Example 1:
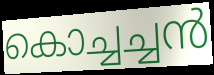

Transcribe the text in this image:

കൊച്ചച്ചൻ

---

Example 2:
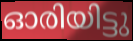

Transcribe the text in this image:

ഓരിയിട്ടു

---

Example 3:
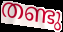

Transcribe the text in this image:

തണ്ടു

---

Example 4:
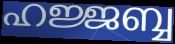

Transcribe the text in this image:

ഹജ്ജബ്ബ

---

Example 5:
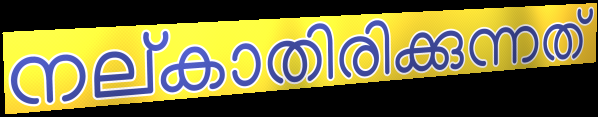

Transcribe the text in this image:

നല്കാതിരിക്കുന്നത്